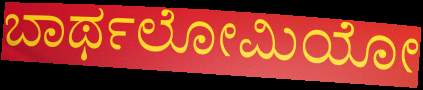
ಬಾರ್ಥಲೋಮಿಯೋ